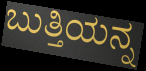
ಬುತ್ತಿಯನ್ನ